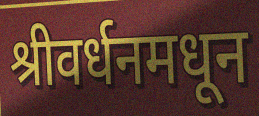
श्रीवर्धनमधून